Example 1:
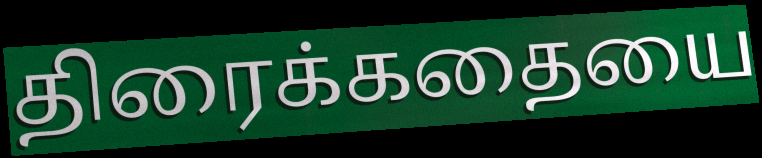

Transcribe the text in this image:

திரைக்கதையை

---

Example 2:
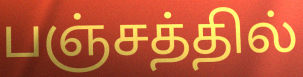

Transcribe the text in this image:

பஞ்சத்தில்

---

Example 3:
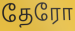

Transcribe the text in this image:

தேரோ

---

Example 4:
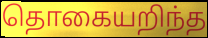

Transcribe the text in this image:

தொகையறிந்த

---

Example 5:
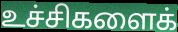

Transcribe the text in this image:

உச்சிகளைக்